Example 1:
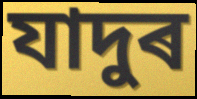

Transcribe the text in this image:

যাদুৰ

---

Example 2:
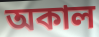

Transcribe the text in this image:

অকাল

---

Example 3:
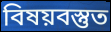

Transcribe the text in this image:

বিষয়বস্তুত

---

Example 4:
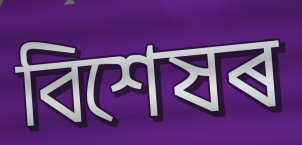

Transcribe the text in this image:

বিশেষৰ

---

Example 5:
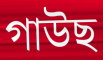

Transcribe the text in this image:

গাউছ